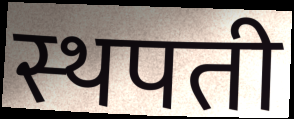
स्थपती